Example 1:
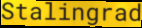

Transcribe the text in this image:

Stalingrad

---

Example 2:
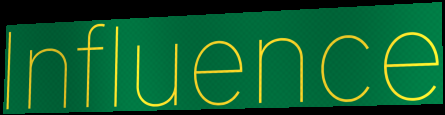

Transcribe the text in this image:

Influence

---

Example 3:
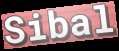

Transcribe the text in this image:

Sibal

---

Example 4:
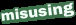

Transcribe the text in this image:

misusing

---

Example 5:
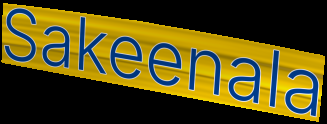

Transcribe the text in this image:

Sakeenala